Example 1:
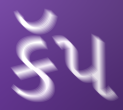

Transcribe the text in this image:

કૅપ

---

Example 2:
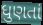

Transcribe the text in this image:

ધુણતાં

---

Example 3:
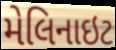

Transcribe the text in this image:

મેલિનાઇટ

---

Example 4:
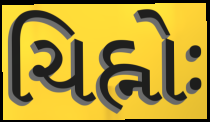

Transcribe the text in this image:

ચિહ્નોઃ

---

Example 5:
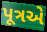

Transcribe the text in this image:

પૂત્રએ